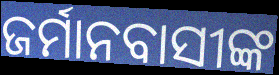
ଜର୍ମାନବାସୀଙ୍କ